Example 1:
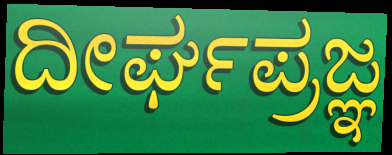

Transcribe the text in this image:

ದೀರ್ಘಪ್ರಜ್ಞ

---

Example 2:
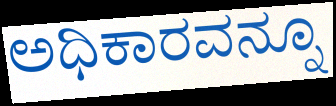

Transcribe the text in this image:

ಅಧಿಕಾರವನ್ನೂ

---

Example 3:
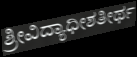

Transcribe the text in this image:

ಶ್ರೀವಿದ್ಯಾಧೀಶತೀರ್ಥ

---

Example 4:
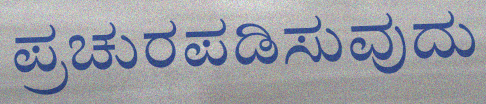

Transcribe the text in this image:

ಪ್ರಚುರಪಡಿಸುವುದು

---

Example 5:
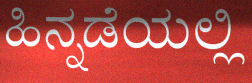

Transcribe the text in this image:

ಹಿನ್ನಡೆಯಲ್ಲಿ